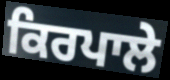
ਕਿਰਪਾਲੇ